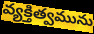
వ్యక్తిత్వమును